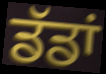
ਡੱਡਾਂ